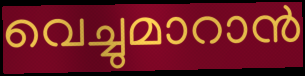
വെച്ചുമാറാൻ